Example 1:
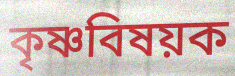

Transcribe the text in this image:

কৃষ্ণবিষয়ক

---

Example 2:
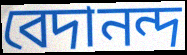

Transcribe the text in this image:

বেদানন্দ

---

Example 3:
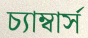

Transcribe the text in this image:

চ্যাম্বার্স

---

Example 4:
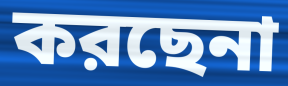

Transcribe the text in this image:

করছেনা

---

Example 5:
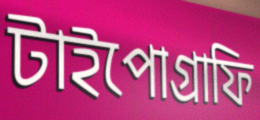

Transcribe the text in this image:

টাইপোগ্রাফি